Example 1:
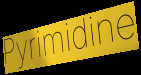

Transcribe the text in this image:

Pyrimidine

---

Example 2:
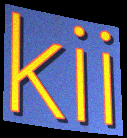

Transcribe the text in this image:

kii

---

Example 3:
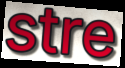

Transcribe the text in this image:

stre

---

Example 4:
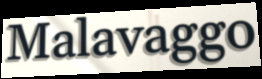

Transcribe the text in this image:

Malavaggo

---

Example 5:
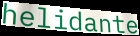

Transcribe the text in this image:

helidante